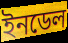
ইনডেল